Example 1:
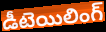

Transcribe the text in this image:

డీటెయిలింగ్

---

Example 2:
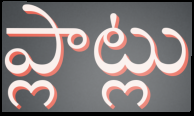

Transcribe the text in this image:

ప్లాట్లు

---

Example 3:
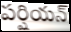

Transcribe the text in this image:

పర్షియన్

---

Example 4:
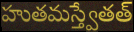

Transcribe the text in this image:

హుతమస్త్వేతత్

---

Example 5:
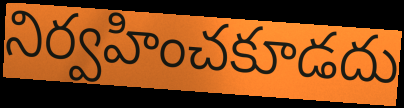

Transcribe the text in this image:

నిర్వహించకూడదు